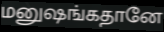
மனுஷங்கதானே